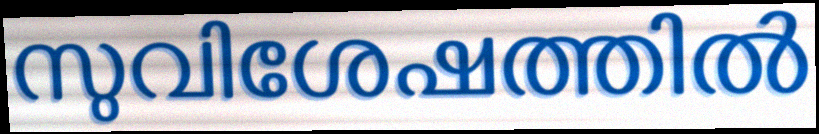
സുവിശേഷത്തിൽ